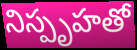
నిస్పృహతో